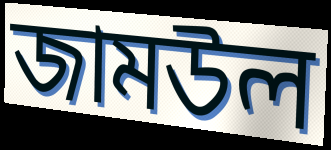
জামউল